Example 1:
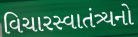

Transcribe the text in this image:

વિચારસ્વાતંત્ર્યનો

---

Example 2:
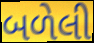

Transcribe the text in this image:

બળેલી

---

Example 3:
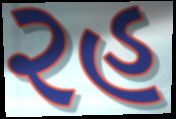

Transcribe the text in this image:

રહ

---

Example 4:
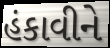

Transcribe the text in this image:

હંકાવીને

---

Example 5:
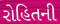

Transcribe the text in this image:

રોહિતની